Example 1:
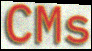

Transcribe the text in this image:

CMs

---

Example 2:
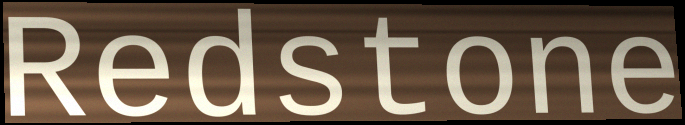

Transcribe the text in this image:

Redstone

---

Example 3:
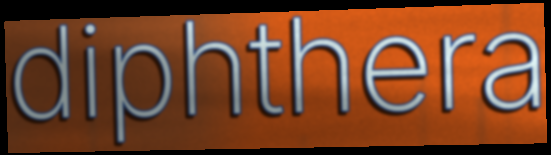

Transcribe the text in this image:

diphthera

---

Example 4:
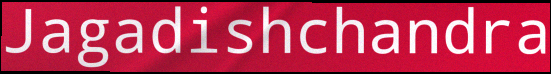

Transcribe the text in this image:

Jagadishchandra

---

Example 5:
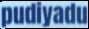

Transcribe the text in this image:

pudiyadu